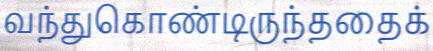
வந்துகொண்டிருந்ததைக்